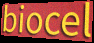
biocel